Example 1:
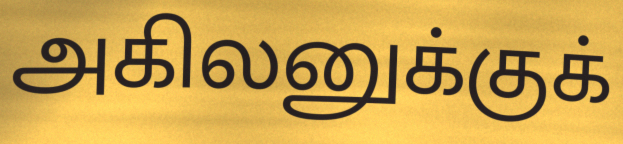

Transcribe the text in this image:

அகிலனுக்குக்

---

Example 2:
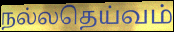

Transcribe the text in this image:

நல்லதெய்வம்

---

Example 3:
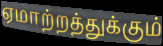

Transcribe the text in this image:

ஏமாற்றத்துக்கும்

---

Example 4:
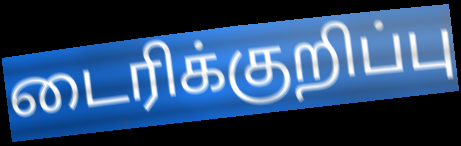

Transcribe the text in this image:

டைரிக்குறிப்பு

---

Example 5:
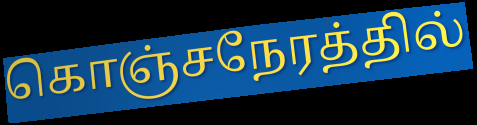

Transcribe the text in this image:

கொஞ்சநேரத்தில்